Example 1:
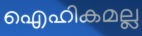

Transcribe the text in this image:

ഐഹികമല്ല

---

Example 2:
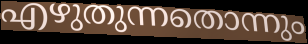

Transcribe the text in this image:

എഴുതുന്നതൊന്നും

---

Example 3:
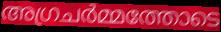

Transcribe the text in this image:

അഗ്രചർമ്മത്തോടെ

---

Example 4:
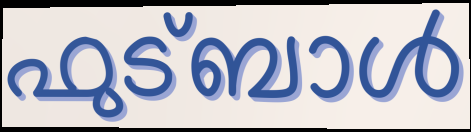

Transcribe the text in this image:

ഫുട്ബാൾ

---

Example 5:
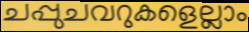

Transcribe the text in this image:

ചപ്പുചവറുകളെല്ലാം